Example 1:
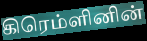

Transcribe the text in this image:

கிரெம்ளினின்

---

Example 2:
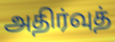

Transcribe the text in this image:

அதிர்வுத்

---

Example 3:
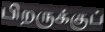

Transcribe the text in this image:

பிறருக்குப்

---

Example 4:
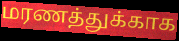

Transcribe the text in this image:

மரணத்துக்காக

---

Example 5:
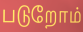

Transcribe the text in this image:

படுறோம்